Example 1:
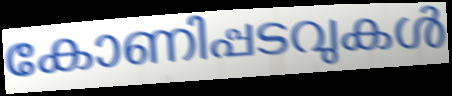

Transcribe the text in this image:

കോണിപ്പടവുകൾ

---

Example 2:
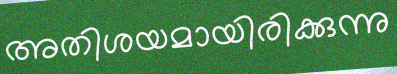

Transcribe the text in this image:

അതിശയമായിരിക്കുന്നു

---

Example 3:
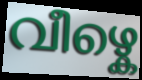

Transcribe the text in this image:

വീഴ്കെ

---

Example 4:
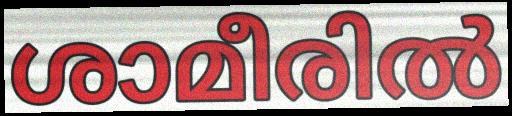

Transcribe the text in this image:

ശാമീരിൽ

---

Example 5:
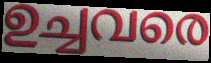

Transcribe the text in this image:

ഉച്ചവരെ